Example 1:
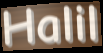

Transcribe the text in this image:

Halil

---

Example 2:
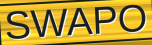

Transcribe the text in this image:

SWAPO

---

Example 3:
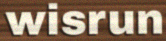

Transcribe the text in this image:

wisrun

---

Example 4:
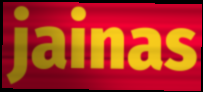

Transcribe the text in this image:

jainas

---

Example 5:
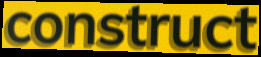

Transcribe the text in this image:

construct